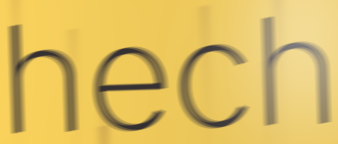
hech